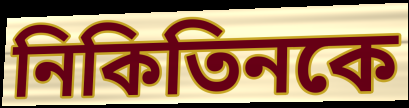
নিকিতিনকে